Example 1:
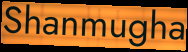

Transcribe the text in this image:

Shanmugha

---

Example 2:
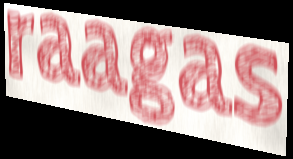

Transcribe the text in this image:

raagas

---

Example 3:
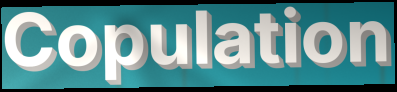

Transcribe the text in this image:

Copulation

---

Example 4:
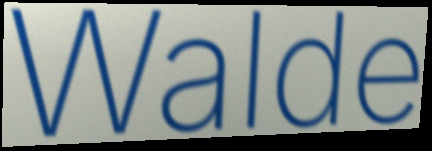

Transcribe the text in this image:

Walde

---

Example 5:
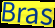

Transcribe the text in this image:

Bras